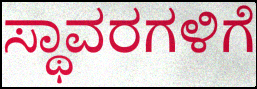
ಸ್ಥಾವರಗಳಿಗೆ